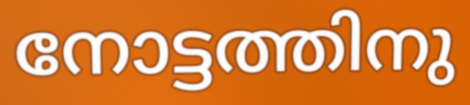
നോട്ടത്തിനു